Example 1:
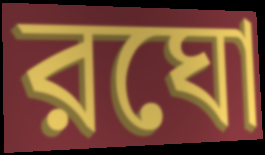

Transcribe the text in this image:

রঘো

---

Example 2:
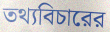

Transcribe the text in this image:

তথ্যবিচারের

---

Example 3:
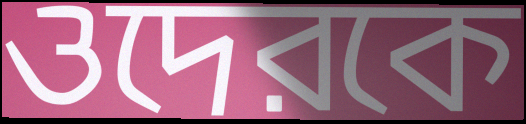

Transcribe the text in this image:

ওদেরকে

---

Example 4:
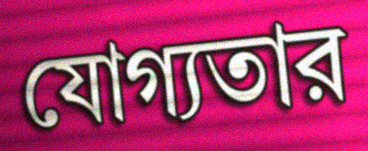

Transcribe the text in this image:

যোগ্যতার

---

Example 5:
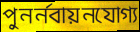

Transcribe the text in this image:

পুনর্নবায়নযোগ্য